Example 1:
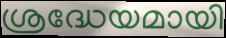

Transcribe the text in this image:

ശ്രദ്ധേയമായി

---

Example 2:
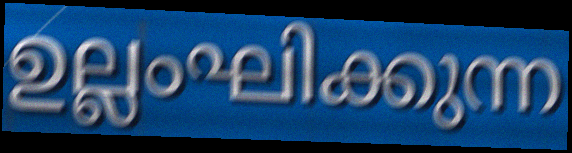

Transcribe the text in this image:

ഉല്ലംഘിക്കുന്ന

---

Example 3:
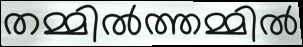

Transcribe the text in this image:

തമ്മിൽത്തമ്മിൽ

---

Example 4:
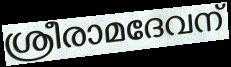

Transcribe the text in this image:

ശ്രീരാമദേവന്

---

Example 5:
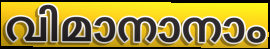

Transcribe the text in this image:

വിമാനാനാം